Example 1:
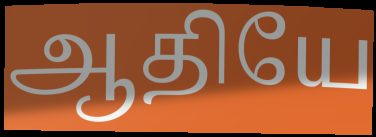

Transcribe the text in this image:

ஆதியே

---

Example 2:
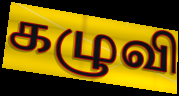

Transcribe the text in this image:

கழுவி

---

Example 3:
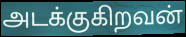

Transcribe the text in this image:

அடக்குகிறவன்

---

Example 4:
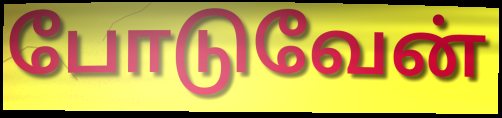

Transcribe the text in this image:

போடுவேன்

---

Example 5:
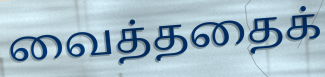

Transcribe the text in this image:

வைத்ததைக்